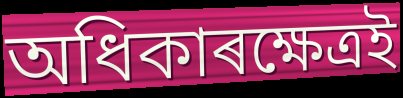
অধিকাৰক্ষেত্ৰই